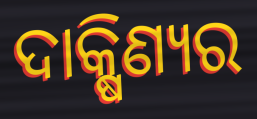
ଦାକ୍ଷିଣ୍ୟର